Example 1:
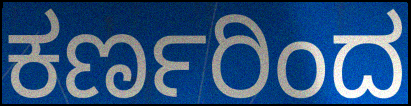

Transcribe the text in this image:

ಕರ್ಣರಿಂದ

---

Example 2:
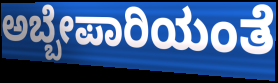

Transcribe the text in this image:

ಅಬ್ಬೇಪಾರಿಯಂತೆ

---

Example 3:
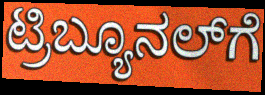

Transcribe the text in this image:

ಟ್ರಿಬ್ಯೂನಲ್‌ಗೆ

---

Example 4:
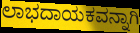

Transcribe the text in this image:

ಲಾಭದಾಯಕವನ್ನಾಗಿ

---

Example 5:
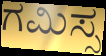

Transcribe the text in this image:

ಗಮಿಸ್ಸ